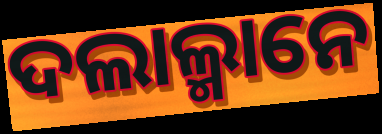
ଦଲାଲ୍ମାନେ